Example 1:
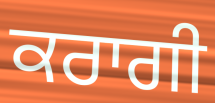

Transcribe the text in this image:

ਕਰਾਗੀ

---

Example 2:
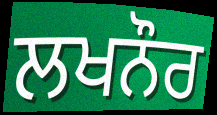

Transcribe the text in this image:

ਲਖਨੌਰ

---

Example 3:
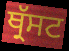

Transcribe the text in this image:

ਥ੍ਰੱਸਟ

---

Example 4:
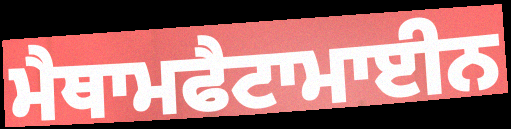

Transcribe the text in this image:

ਮੈਥਾਮਫੈਟਾਮਾਈਨ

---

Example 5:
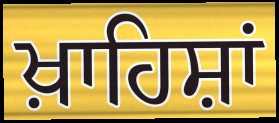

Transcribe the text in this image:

ਖ਼ਾਹਿਸ਼ਾਂ